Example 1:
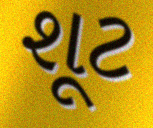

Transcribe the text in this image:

શૂટ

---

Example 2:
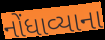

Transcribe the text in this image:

નોંધાવ્યાના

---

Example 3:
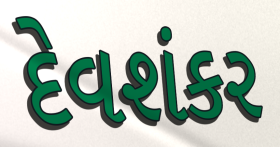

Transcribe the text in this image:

દેવશંકર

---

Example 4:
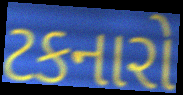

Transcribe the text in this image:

ટકનારો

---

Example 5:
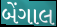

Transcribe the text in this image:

બેંગાલ